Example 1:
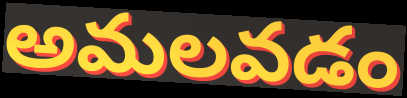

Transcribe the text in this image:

అమలవడం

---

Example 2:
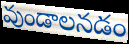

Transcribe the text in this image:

వుండాలనడం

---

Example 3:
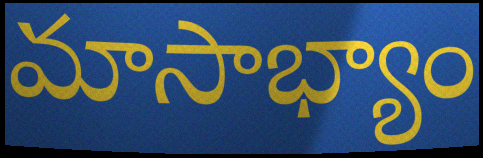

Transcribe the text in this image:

మాసాభ్యాం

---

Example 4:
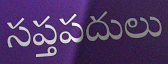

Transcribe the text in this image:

సప్తపదులు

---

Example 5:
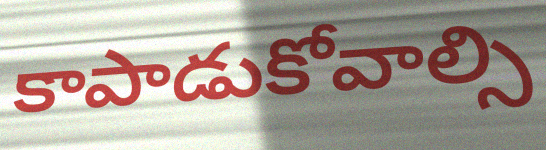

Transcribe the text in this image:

కాపాడుకోవాల్సి